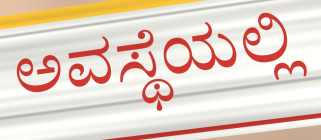
ಅವಸ್ಥೆಯಲ್ಲಿ